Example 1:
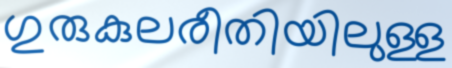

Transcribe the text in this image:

ഗുരുകുലരീതിയിലുള്ള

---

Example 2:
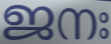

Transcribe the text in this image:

ജനഃ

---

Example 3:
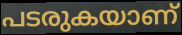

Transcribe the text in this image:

പടരുകയാണ്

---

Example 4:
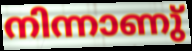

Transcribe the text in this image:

നിന്നാണു്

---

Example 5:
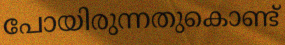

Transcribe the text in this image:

പോയിരുന്നതുകൊണ്ട്